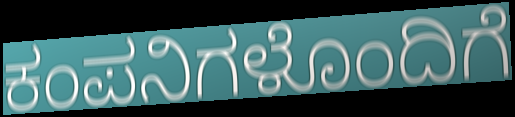
ಕಂಪನಿಗಳೊಂದಿಗೆ